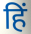
हिं